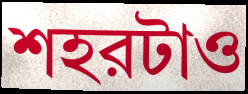
শহরটাও